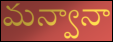
మన్వానా